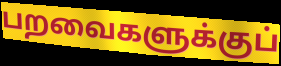
பறவைகளுக்குப்